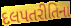
દલપતરીતિના